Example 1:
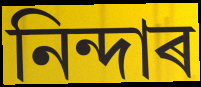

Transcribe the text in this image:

নিন্দাৰ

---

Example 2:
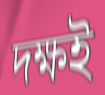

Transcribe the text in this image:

দক্ষই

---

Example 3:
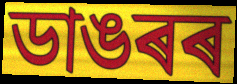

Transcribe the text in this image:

ডাঙৰৰ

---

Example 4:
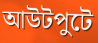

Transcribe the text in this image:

আউটপুটে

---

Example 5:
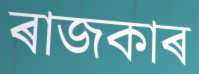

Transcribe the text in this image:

ৰাজকাৰ